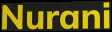
Nurani